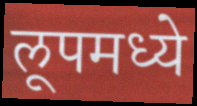
लूपमध्ये